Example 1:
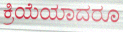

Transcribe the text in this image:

ಕ್ರಿಯೆಯಾದರೂ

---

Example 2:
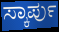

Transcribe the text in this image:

ಸ್ಕಾರ್ಪು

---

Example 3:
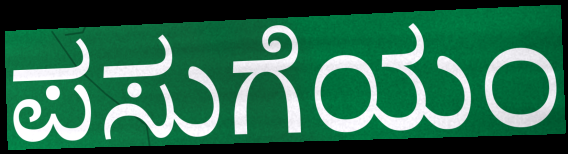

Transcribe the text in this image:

ಪಸುಗೆಯಂ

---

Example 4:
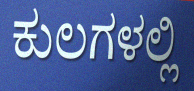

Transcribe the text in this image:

ಕುಲಗಳಲ್ಲಿ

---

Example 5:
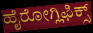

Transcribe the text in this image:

ಹೈರೋಗ್ಲಿಫಿಕ್ಸ್